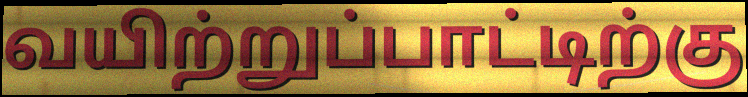
வயிற்றுப்பாட்டிற்கு